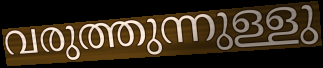
വരുത്തുന്നുള്ളു